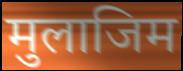
मुलाजिम